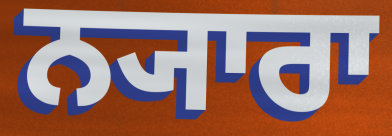
ਨ੍ਯਾਰਾ